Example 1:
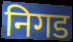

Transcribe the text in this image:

निगड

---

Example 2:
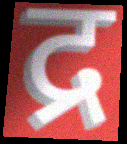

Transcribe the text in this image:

द्र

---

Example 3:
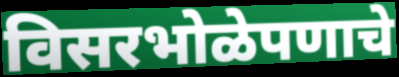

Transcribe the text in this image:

विसरभोळेपणाचे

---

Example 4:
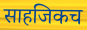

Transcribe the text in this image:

साहजिकच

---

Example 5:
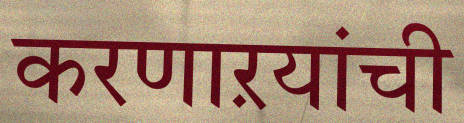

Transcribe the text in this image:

करणाऱयांची